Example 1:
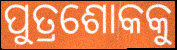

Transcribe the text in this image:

ପୁତ୍ରଶୋକକୁ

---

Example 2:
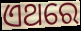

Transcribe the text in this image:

ଏଥରେ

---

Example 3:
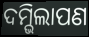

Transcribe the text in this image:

ଦମ୍ଭିଲାପଣ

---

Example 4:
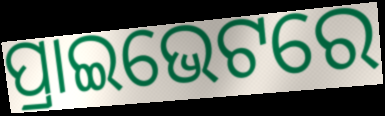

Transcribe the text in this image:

ପ୍ରାଇଭେଟରେ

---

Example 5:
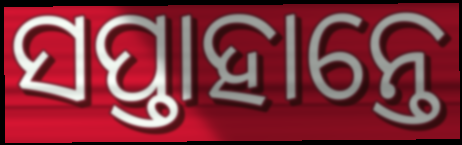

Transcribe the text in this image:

ସପ୍ତାହାନ୍ତେ